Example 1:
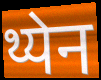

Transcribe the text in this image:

थ्येन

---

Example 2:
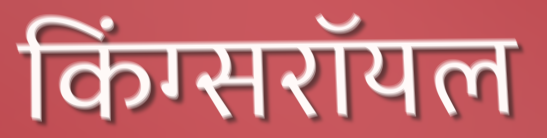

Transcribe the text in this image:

किंग्सरॉयल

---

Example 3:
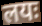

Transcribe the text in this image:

लयः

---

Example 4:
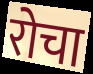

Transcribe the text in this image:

रोचा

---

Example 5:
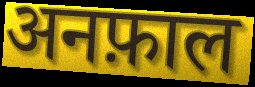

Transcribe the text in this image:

अनफ़ाल